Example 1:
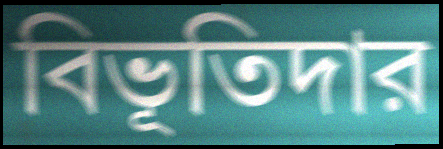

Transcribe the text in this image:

বিভূতিদার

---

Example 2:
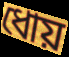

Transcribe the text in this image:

ধোয়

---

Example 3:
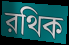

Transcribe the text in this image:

রথিক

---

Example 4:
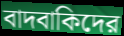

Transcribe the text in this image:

বাদবাকিদের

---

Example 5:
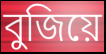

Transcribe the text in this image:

বুজিয়ে